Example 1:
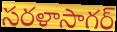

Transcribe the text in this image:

సరళాసాగర్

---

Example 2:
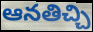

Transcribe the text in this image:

ఆనతిచ్చి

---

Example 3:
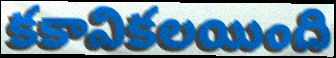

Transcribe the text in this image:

కకావికలయింది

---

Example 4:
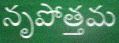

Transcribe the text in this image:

నృపోత్తమ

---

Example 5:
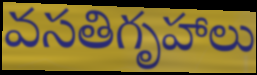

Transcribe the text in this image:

వసతిగృహాలు